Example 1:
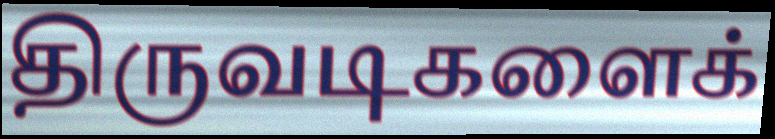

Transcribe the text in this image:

திருவடிகளைக்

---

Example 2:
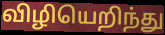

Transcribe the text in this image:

விழியெறிந்து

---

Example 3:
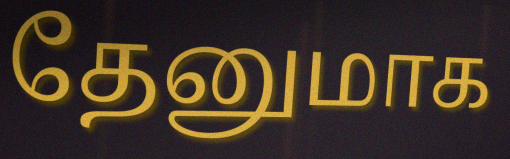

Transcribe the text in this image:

தேனுமாக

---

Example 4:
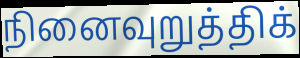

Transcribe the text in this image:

நினைவுறுத்திக்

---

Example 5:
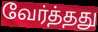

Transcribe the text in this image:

வேர்த்தது